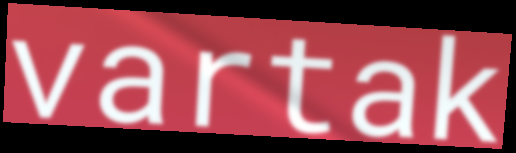
vartak